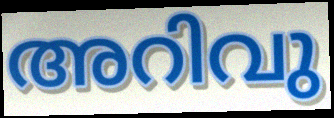
അറിവു